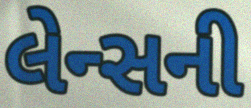
લેન્સની